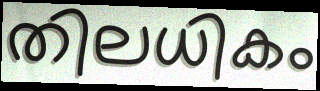
തിലധികം